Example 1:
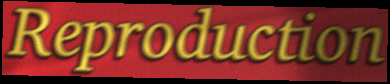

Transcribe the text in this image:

Reproduction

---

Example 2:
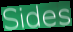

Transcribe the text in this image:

Sides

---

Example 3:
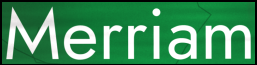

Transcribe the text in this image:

Merriam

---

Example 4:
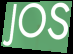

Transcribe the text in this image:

JOS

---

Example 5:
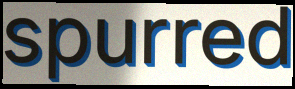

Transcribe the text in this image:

spurred